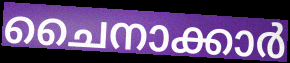
ചൈനാക്കാർ